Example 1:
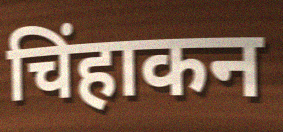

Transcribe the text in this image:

चिंहाकन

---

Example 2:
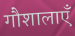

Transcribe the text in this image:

गौशालाएँ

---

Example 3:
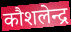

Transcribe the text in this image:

कौशलेन्द्र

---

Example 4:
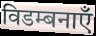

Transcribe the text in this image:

विडम्बनाएँ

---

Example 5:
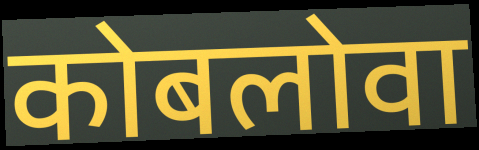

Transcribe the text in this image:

कोबलोवा